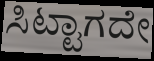
ಸಿಟ್ಟಾಗದೇ